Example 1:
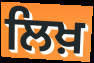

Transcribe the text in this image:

ਲਿਖ਼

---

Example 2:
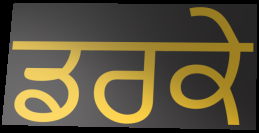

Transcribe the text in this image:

ਡਰਕੇ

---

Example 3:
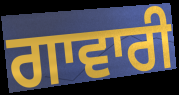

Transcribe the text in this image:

ਗਾਵਾਰੀ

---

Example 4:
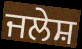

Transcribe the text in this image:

ਜਲੇਸ਼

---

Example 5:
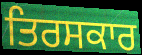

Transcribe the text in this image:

ਤਿਰਸਕਾਰ